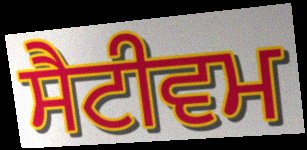
ਸੈਟੀਵਮ